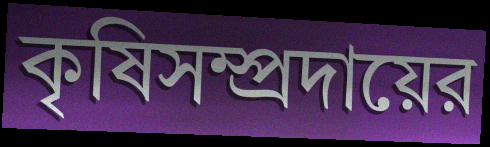
কৃষিসম্প্রদায়ের